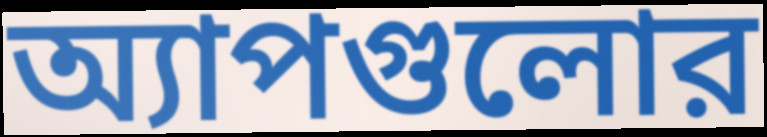
অ্যাপগুলোর